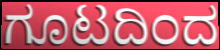
ಗೂಟದಿಂದ